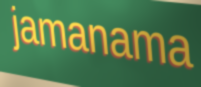
jamanama